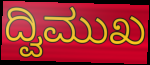
ದ್ವಿಮುಖ